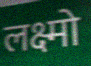
लक्ष्मो